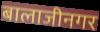
बालाजीनगर